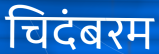
चिदंबरम